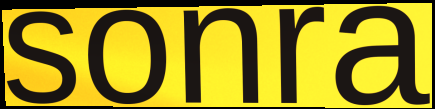
sonra